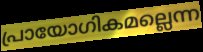
പ്രായോഗികമല്ലെന്ന